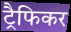
ट्रैफिकर